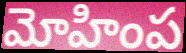
మోహింప